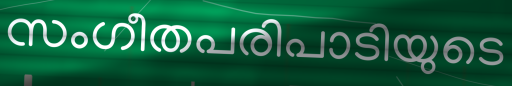
സംഗീതപരിപാടിയുടെ